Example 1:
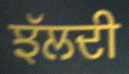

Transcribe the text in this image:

ਝੱਲਦੀ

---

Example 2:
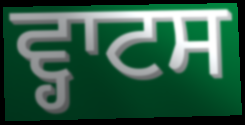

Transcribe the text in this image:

ਵ੍ਹਾਟਸ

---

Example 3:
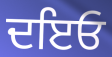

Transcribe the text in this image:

ਦਇਓ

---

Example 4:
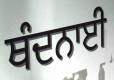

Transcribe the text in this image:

ਥੰਦਨਾਈ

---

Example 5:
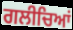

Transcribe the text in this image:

ਗਲੀਚਿਆਂ